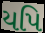
યપિ